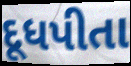
દૂધપીતા